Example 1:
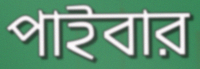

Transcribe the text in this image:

পাইবার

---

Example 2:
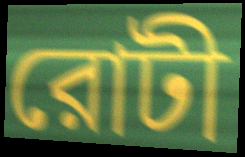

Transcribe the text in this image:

রোটী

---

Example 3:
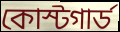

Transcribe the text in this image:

কোস্টগার্ড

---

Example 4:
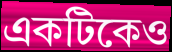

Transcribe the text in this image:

একটিকেও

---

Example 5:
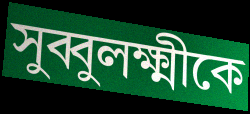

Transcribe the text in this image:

সুব্বুলক্ষ্মীকে